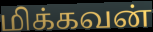
மிக்கவன்